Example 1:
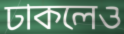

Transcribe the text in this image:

ঢাকলেও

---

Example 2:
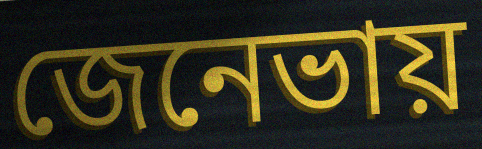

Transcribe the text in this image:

জেনেভায়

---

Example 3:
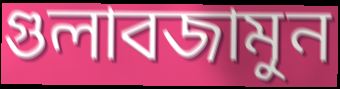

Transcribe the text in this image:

গুলাবজামুন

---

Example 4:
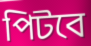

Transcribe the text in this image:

পিটবে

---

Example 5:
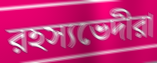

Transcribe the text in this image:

রহস্যভেদীরা